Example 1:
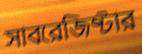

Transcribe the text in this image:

সাবরেজিষ্টার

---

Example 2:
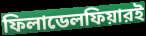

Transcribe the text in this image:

ফিলাডেলফিয়ারই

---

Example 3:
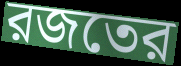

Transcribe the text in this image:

রজতের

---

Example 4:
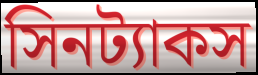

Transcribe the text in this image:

সিনট্যাকস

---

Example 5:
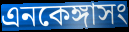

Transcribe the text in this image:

এনকেঙ্গাসং